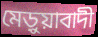
মেড়ুয়াবাদী